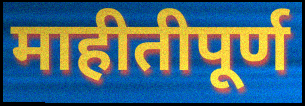
माहीतीपूर्ण